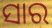
ସାର